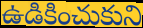
ఉడికించుకుని